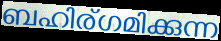
ബഹിര്ഗമിക്കുന്ന